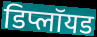
डिप्लॉयड